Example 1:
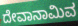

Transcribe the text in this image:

ದೇವಾನಾಮಿವ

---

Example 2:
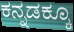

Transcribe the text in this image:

ಕನ್ನಡಕ್ಕೂ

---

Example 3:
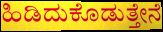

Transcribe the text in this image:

ಹಿಡಿದುಕೊಡುತ್ತೇನೆ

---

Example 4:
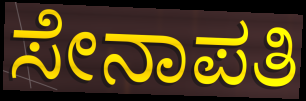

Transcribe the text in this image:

ಸೇನಾಪತಿ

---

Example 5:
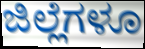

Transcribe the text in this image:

ಜಿಲ್ಲೆಗಳೂ